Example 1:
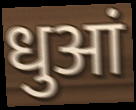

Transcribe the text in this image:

धुआं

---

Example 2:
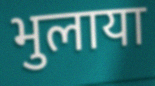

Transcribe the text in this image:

भुलाया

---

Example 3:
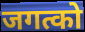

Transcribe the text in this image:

जगत्को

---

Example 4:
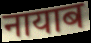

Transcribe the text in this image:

नायाब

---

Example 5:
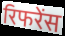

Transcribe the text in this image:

रिफरेंस